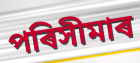
পৰিসীমাৰ